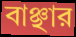
বাঞ্ছার